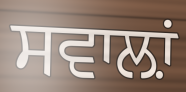
ਸਵਾਲ਼ਾਂ